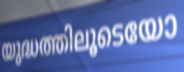
യുദ്ധത്തിലൂടെയോ